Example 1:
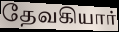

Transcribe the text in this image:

தேவகியார்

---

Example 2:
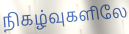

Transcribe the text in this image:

நிகழ்வுகளிலே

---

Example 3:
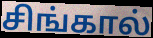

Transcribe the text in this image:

சிங்கால்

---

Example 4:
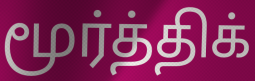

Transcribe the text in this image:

மூர்த்திக்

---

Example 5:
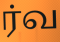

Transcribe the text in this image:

ர்வ